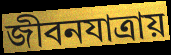
জীবনযাত্রায়